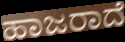
ಹಾಜರಾದೆ